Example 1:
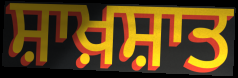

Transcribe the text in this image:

ਸ਼ਾਖ਼ਸ਼ਾਤ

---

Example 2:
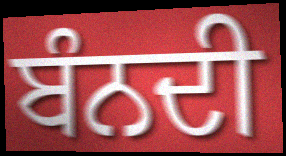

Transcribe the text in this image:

ਬੰਨਦੀ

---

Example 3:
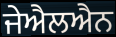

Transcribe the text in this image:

ਜੇਐਲਐਨ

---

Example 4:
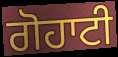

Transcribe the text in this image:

ਗੋਹਾਟੀ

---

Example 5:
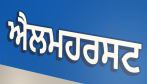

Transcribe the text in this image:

ਐਲਮਹਰਸਟ